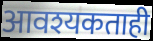
आवश्यकताही